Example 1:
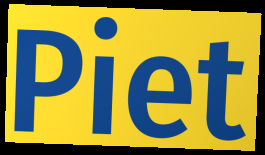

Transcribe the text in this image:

Piet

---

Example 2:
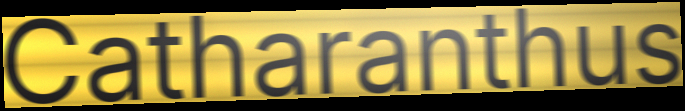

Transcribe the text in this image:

Catharanthus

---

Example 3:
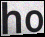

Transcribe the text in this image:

ho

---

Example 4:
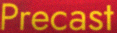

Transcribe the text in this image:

Precast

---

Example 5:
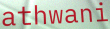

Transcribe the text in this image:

athwani